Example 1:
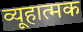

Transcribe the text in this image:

व्यूहात्मक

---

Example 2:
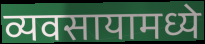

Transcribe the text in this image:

व्यवसायामध्ये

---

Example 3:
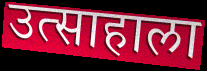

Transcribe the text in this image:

उत्साहाला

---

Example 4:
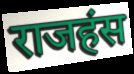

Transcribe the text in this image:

राजहंस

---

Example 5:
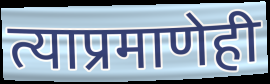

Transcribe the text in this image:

त्याप्रमाणेही